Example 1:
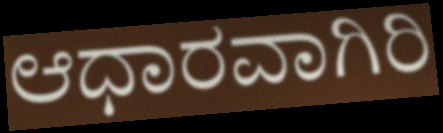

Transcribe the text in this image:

ಆಧಾರವಾಗಿರಿ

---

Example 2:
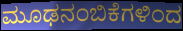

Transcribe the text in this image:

ಮೂಢನಂಬಿಕೆಗಳಿಂದ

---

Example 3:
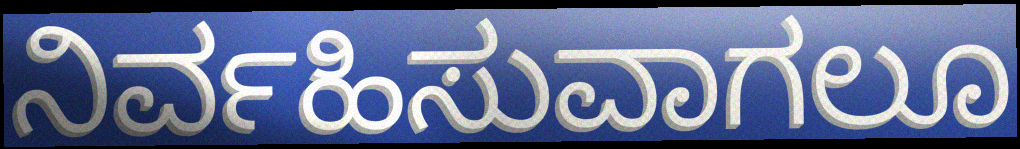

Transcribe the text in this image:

ನಿರ್ವಹಿಸುವಾಗಲೂ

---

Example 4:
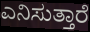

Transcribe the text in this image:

ಎನಿಸುತ್ತಾರೆ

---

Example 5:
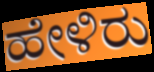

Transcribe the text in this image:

ಹೇಳಿರು